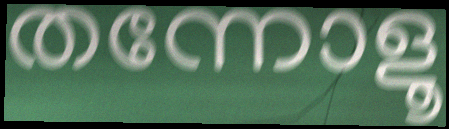
തന്നോളൂ